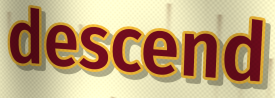
descend